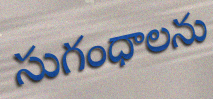
సుగంధాలను